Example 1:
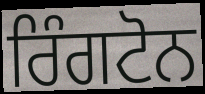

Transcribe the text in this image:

ਰਿੰਗਟੋਨ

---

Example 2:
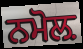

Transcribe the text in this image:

ਨਮੋਲ਼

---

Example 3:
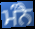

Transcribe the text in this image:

ਮੰਨੈ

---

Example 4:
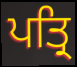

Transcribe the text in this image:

ਪਤ੍ਰਿ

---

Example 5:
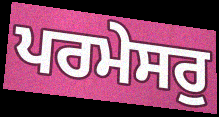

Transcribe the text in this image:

ਪਰਮੇਸਰੁ